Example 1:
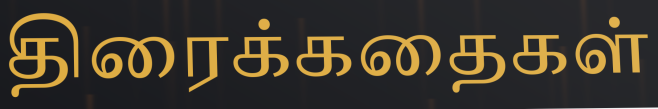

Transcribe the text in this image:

திரைக்கதைகள்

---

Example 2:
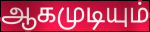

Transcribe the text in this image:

ஆகமுடியும்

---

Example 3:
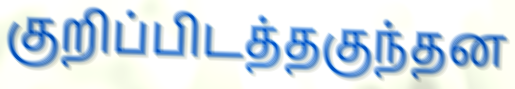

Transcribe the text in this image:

குறிப்பிடத்தகுந்தன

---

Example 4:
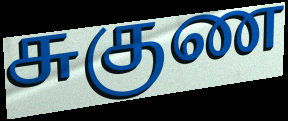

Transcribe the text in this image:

சுகுண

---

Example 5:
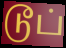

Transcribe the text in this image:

டூப்